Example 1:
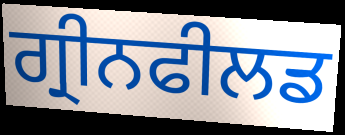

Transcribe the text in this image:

ਗ੍ਰੀਨਫੀਲਡ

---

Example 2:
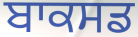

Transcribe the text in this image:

ਬਾਕਸਡ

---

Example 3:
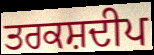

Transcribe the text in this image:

ਤਰਕਸ਼ਦੀਪ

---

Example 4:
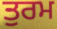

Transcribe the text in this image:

ਤੁਰਮ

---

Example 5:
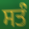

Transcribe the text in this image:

ਸਤੰ